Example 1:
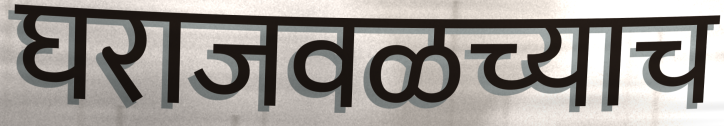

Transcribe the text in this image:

घराजवळच्याच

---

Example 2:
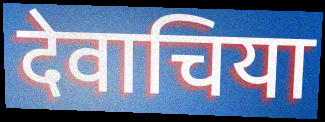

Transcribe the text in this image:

देवाचिया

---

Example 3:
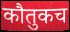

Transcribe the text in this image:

कौतुकच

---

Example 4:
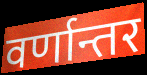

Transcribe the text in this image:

वर्णान्तर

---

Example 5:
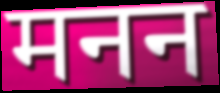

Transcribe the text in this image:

मनन